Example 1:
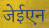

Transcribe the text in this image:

जेईएन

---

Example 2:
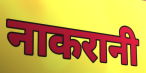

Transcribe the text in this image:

नाकरानी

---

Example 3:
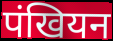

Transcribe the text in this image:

पंखियन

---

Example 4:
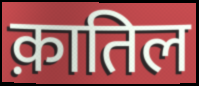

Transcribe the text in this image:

क़ातिल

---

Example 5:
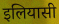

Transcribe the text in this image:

इलियासी